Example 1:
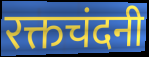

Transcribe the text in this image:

रक्तचंदनी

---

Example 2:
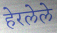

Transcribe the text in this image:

हेरलेले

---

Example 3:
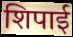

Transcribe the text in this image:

शिपाई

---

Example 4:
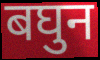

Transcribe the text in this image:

बघुन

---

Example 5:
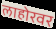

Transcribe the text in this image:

लाहोरवर